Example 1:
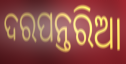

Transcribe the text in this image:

ଦରପନ୍ତରିଆ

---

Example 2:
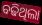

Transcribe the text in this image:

ବଢିଥିଲା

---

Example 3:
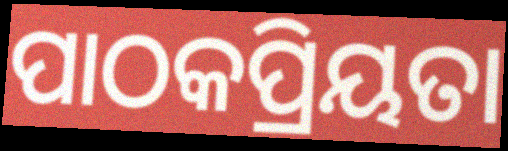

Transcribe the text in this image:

ପାଠକପ୍ରିୟତା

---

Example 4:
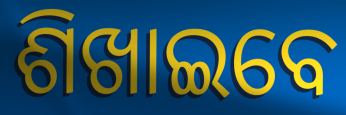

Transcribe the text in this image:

ଶିଖାଇବେ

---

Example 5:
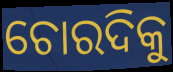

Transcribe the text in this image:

ଚୋରଦିକୁ